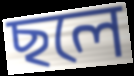
ছলে